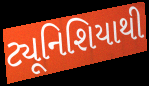
ટ્યૂનિશિયાથી